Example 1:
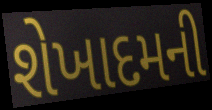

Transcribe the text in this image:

શેખાદમની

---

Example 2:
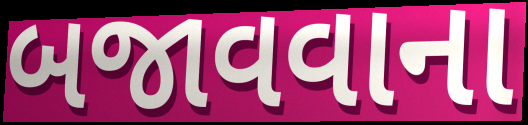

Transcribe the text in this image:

બજાવવાના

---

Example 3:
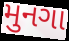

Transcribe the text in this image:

મુનગા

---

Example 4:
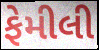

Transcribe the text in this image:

ફેમીલી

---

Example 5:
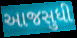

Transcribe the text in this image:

આજસુધી